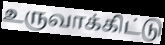
உருவாக்கிட்டு